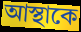
আস্থাকে